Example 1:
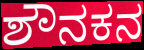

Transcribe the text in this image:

ಶೌನಕನ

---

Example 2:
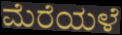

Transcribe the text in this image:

ಮೆರೆಯಳೆ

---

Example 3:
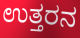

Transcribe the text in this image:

ಉತ್ತರನ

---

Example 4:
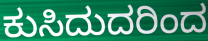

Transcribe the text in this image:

ಕುಸಿದುದರಿಂದ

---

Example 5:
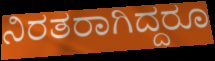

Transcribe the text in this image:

ನಿರತರಾಗಿದ್ದರೂ